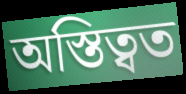
অস্তিত্বত